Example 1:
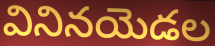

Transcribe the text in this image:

వినినయెడల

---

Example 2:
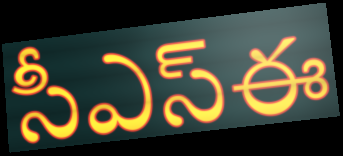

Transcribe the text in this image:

సీఎస్ఈ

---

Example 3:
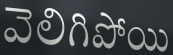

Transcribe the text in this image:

వెలిగిపోయి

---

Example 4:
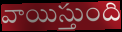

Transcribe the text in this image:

వాయిస్తుంది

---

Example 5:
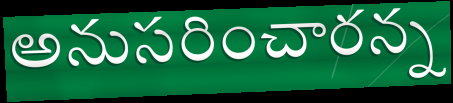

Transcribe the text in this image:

అనుసరించారన్న